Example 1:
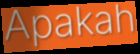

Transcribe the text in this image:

Apakah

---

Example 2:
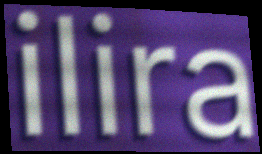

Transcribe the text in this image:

ilira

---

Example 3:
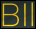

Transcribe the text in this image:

BIl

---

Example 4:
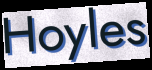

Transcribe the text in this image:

Hoyles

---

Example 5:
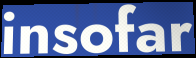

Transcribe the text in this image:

insofar